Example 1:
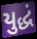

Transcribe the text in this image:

યુદ્ધં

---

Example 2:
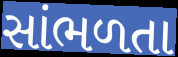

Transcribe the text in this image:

સાંભળતા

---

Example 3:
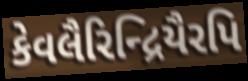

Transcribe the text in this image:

કેવલૈરિન્દ્રિયૈરપિ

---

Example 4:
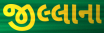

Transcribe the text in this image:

જીલ્લાના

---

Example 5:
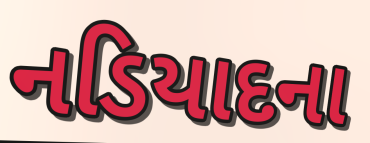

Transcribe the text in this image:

નડિયાદના